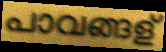
പാവങ്ങള്